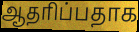
ஆதரிப்பதாக